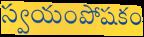
స్వయంపోషకం